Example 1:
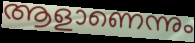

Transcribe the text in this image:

ആളാണെന്നും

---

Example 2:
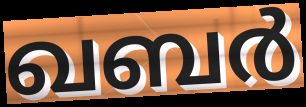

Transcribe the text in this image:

ഖബർ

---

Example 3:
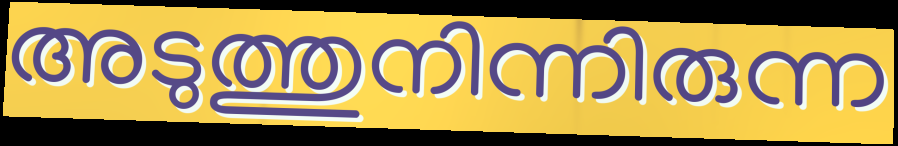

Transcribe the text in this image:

അടുത്തുനിന്നിരുന്ന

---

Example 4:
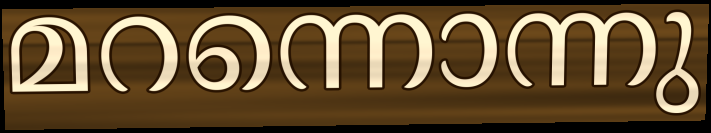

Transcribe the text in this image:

മറന്നൊന്നു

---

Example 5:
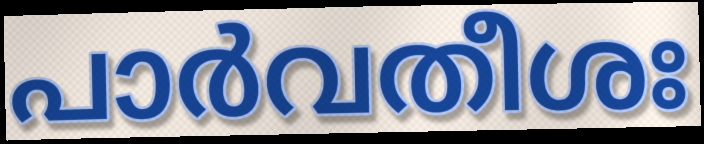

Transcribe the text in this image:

പാർവതീശഃ